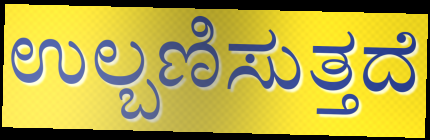
ಉಲ್ಬಣಿಸುತ್ತದೆ